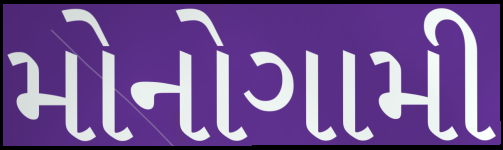
મોનોગામી